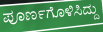
ಪೂರ್ಣಗೊಳಿಸಿದ್ದು